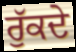
ਰੁੱਕਦੇ